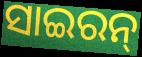
ସାଇରନ୍